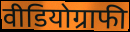
वीडियोग्राफी